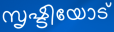
സൃഷ്ടിയോട്